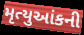
મૃત્યુઆંકની